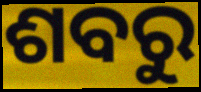
ଶବରୁ